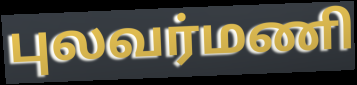
புலவர்மணி